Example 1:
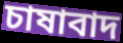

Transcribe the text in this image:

চাষাবাদ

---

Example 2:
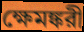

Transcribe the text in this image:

ক্ষেমঙ্করী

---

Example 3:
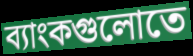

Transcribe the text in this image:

ব্যাংকগুলোতে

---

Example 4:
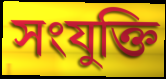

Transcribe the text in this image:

সংযুক্তি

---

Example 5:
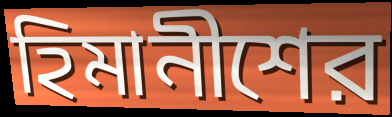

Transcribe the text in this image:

হিমানীশের